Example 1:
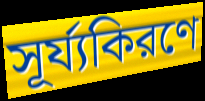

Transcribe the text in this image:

সূর্য্যকিরণে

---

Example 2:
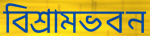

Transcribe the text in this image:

বিশ্রামভবন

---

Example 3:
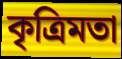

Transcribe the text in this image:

কৃত্রিমতা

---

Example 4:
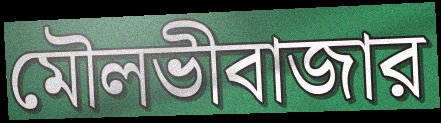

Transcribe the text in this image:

মৌলভীবাজার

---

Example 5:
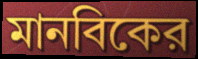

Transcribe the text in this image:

মানবিকের